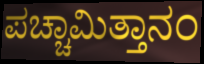
ಪಚ್ಚಾಮಿತ್ತಾನಂ